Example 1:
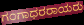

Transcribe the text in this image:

ಗಂಗಾಧರರಾಯರು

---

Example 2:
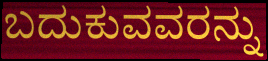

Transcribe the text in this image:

ಬದುಕುವವರನ್ನು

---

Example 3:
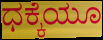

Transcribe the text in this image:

ಧಕ್ಕೆಯೂ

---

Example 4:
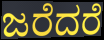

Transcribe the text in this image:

ಜರೆದರೆ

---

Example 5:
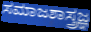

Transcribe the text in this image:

ಸಮಾಜಶಾಸ್ತ್ರಜ್ಞ